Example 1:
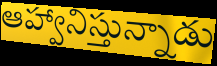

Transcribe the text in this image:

ఆహ్వానిస్తున్నాడు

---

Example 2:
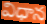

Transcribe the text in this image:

విధాన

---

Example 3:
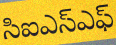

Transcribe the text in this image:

సిఐఎస్ఎఫ్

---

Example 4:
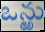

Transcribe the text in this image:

ఒన్ఱు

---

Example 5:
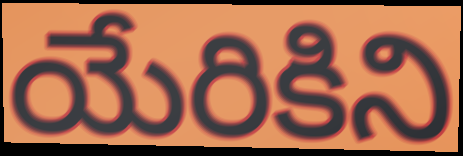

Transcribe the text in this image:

యేరికిని